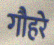
गौहरे